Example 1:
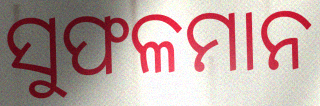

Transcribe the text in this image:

ସୁଫଳମାନ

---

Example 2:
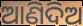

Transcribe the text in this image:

ଆଣିଦିଅ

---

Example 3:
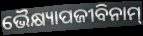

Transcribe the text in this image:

ଭୈକ୍ଷ୍ୟାପଜୀବିନାମ୍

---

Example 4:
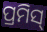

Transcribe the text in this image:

ପ୍ରମିସ୍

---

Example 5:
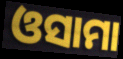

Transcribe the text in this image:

ଓସାମା